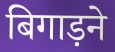
बिगाड़ने